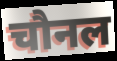
चौनल